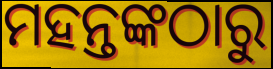
ମହନ୍ତଙ୍କଠାରୁ